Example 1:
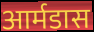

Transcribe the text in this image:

आर्मडास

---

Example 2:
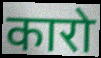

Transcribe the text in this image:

कारो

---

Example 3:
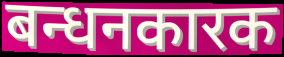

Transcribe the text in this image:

बन्धनकारक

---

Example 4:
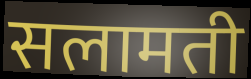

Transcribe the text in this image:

सलामती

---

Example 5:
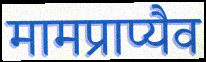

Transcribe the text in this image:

मामप्राप्यैव